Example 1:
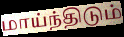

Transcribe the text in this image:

மாய்ந்திடும்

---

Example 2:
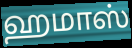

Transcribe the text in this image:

ஹமாஸ்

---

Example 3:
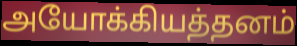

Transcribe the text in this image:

அயோக்கியத்தனம்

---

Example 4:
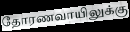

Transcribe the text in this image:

தோரணவாயிலுக்கு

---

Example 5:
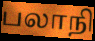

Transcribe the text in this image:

பலாநி